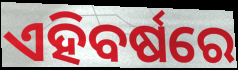
ଏହିବର୍ଷରେ